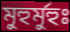
মুহুর্মুহুঃ